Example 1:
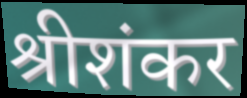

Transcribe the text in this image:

श्रीशंकर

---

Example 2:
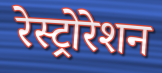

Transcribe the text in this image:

रेस्ट्रोरेशन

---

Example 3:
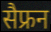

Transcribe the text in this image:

सैफ्रन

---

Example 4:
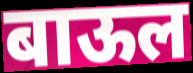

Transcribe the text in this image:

बाऊल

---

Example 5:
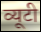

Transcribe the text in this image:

व्यूटी